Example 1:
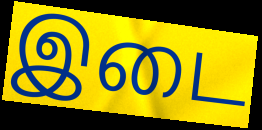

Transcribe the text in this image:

இடை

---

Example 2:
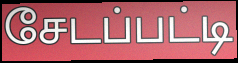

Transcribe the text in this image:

சேடப்பட்டி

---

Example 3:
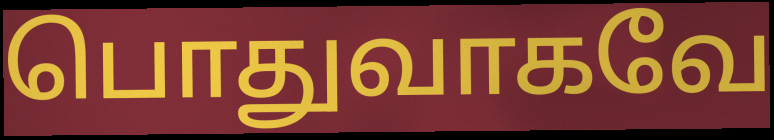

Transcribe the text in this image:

பொதுவாகவே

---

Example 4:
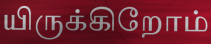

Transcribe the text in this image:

யிருக்கிறோம்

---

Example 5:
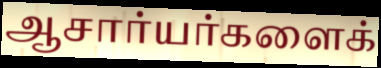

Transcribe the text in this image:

ஆசார்யர்களைக்